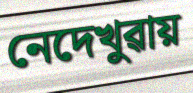
নেদেখুৱায়